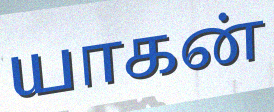
யாகன்